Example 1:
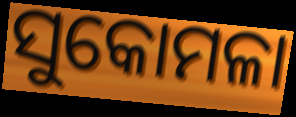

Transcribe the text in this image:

ସୁକୋମଳା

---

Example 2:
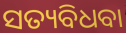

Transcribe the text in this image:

ସତ୍ୟବିଧବା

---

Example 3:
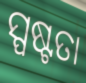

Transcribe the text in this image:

ସ୍ପଷ୍ଟତା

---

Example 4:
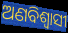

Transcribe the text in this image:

ଅଣବିଶ୍ୱାସୀ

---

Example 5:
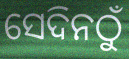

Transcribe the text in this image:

ସେଦିନଠୁଁ